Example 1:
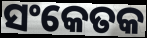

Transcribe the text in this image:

ସଂକେତକ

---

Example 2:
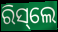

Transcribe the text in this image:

ରିସ୍‌ଲେ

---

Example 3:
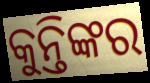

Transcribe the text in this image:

କୁନ୍ତିଙ୍କର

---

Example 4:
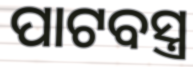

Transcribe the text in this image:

ପାଟବସ୍ତ୍ର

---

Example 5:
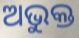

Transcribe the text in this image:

ଅଭୁକ୍ତ